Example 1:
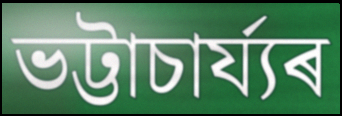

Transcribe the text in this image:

ভট্টাচাৰ্য্যৰ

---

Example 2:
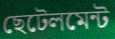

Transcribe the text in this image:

ছেটেলমেন্ট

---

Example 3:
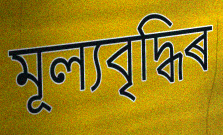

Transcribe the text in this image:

মূল্যবৃদ্ধিৰ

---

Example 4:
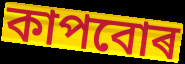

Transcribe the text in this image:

কাপবোৰ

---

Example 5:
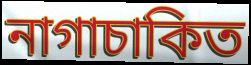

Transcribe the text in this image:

নাগাচাকিত